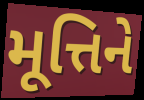
મૂત્તિને